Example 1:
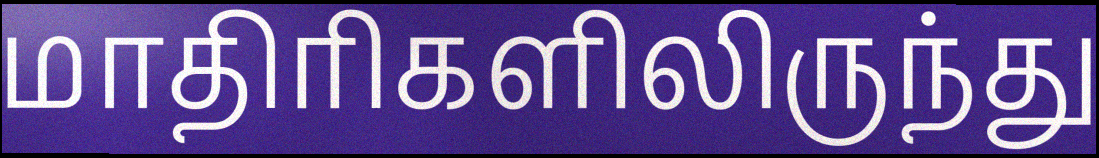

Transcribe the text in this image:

மாதிரிகளிலிருந்து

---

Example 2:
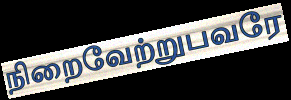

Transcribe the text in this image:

நிறைவேற்றுபவரே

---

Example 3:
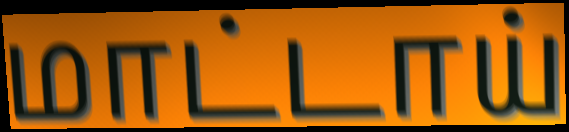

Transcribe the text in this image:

மாட்டாய்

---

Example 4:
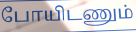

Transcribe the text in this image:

போயிடணும்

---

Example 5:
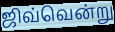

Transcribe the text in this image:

ஜிவ்வென்று